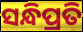
ସନ୍ଧିପ୍ରତି